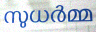
സുധർമ്മ